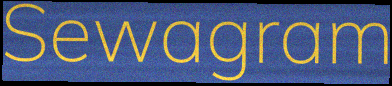
Sewagram